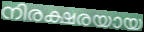
നിരക്ഷരയായ